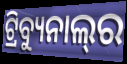
ଟ୍ରିବ୍ୟୁନାଲ୍‍ର